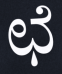
ಛೆ